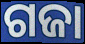
ଗଜା